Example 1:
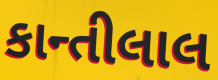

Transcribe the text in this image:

કાન્તીલાલ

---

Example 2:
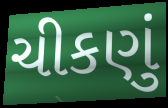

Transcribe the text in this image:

ચીકણું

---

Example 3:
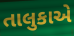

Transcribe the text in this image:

તાલુકાએ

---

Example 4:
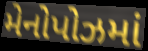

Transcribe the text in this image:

મેનોપોઝમાં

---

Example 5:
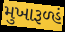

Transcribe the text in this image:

મુખારૂળ્હં